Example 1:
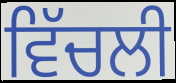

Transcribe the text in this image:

ਵਿੱਚਲੀ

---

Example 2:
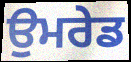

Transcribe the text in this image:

ਉਮਰੇਡ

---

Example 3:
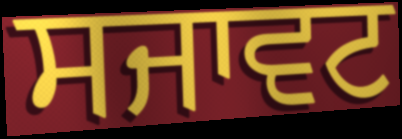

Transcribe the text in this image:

ਸਜਾਵਟ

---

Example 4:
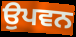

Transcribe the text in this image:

ਉਪਵਨ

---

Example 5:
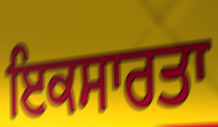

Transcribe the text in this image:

ਇਕਸਾਰਤਾ